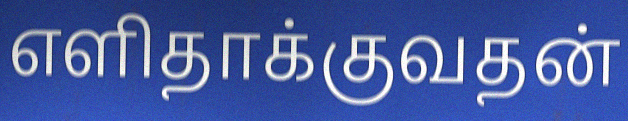
எளிதாக்குவதன்